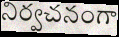
నిర్వచనంగా